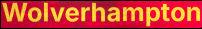
Wolverhampton